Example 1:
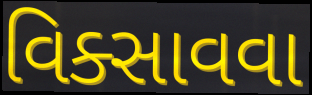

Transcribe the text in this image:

વિક્સાવવા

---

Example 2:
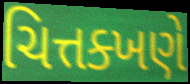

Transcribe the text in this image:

ચિત્તક્ખણે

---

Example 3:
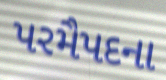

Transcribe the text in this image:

પરમૈપદના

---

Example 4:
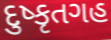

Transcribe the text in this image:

દુષ્કૃતગહ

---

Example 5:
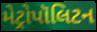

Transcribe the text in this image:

મેટ્રોપૉલિટન